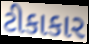
ટીકાકાર